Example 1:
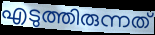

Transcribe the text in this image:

എടുത്തിരുന്നത്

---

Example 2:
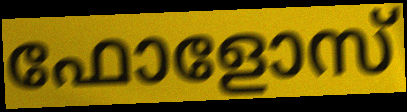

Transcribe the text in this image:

ഫോളോസ്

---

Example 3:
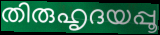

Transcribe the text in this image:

തിരുഹൃദയപ്പൂ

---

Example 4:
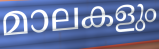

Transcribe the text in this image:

മാലകളും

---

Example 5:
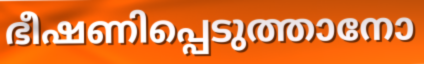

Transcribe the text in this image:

ഭീഷണിപ്പെടുത്താനോ